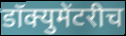
डॉक्युमेंटरीच